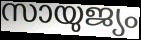
സായുജ്യം